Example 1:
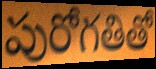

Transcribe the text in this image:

పురోగతితో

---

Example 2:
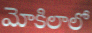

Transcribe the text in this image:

మోకిలాలో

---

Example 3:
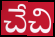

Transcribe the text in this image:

చేచి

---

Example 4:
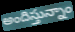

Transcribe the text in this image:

అందిస్తున్నాం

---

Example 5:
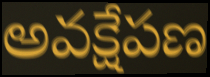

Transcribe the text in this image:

అవక్షేపణ